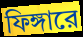
ফিঙ্গারে